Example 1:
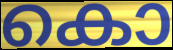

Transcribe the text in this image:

കൊ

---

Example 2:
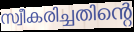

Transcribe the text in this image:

സ്വീകരിച്ചതിന്റെ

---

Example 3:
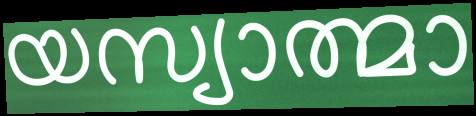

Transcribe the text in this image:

യസ്യാത്മാ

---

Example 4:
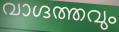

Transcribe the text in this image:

വാഗ്ദത്തവും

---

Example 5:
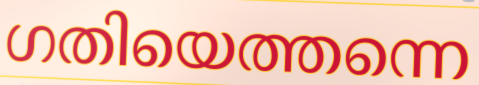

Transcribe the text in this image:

ഗതിയെത്തന്നെ